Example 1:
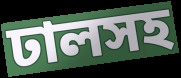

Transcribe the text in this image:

ঢালসহ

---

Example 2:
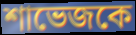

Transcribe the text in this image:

শাভেজকে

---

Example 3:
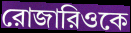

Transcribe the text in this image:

রোজারিওকে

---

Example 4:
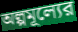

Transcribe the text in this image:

অল্পমূল্যের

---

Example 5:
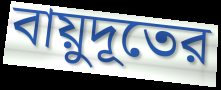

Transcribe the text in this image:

বায়ুদূতের